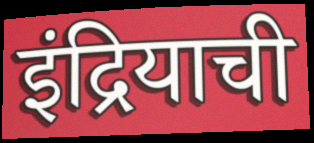
इंद्रियाची